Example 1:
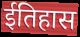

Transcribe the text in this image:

ईतिहास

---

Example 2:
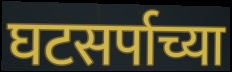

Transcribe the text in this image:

घटसर्पाच्या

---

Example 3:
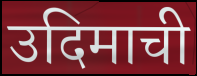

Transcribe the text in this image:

उदिमाची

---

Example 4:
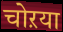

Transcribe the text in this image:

चोऱया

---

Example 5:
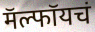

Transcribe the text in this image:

मॅल्फॉयचं